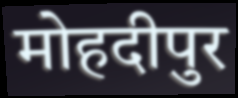
मोहदीपुर